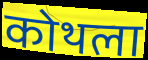
कोथला